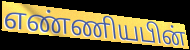
எண்ணியபின்